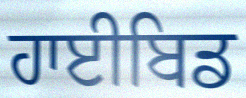
ਹਾਈਬਿਡ